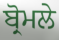
ਬ੍ਰੋਮਲੇ